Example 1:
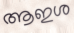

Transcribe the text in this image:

ആഇശ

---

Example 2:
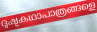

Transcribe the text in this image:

ദുഷ്ടകഥാപാത്രങ്ങളെ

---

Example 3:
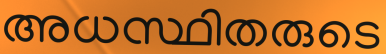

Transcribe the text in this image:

അധസ്ഥിതരുടെ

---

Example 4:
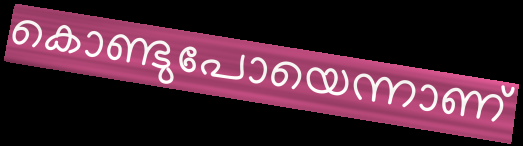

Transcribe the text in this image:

കൊണ്ടുപോയെന്നാണ്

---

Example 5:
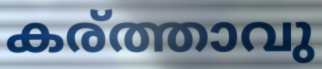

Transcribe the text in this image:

കര്ത്താവു